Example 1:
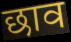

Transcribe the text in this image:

छाव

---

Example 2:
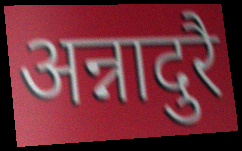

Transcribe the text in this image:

अन्नादुरै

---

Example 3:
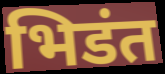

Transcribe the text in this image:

भिडंत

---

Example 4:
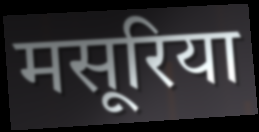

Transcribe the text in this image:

मसूरिया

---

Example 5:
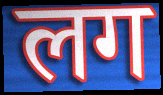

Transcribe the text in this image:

लग